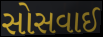
સોસવાઈ